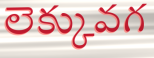
లెక్కువగ